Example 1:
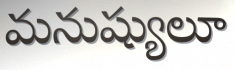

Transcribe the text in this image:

మనుష్యులూ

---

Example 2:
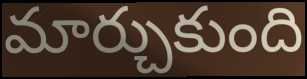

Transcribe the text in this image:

మార్చుకుంది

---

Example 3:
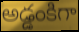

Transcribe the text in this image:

అడ్డంకిగా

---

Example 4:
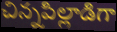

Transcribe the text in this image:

చిన్నపిల్లాడిగా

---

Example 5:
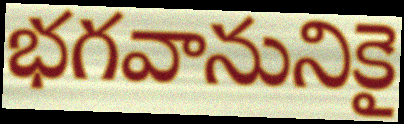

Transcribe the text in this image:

భగవానునికై